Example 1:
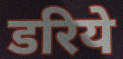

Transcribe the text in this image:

डरिये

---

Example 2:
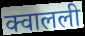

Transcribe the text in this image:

क्वालली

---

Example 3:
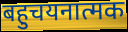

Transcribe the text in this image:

बहुचयनात्मक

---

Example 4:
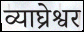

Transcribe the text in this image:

व्याघ्रेश्वर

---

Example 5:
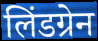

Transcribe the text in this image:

लिंडग्रेन